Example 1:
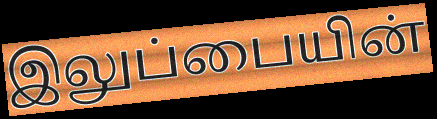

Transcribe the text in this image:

இலுப்பையின்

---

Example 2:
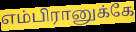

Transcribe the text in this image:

எம்பிரானுக்கே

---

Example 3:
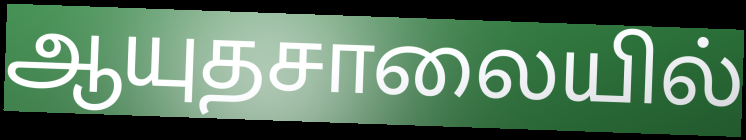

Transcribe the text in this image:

ஆயுதசாலையில்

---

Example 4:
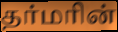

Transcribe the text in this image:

தர்மரின்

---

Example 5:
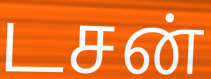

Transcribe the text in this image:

டசன்